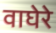
वाघेरे